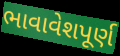
ભાવાવેશપૂર્ણ